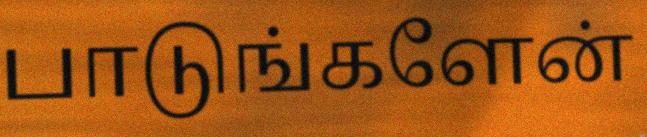
பாடுங்களேன்